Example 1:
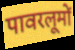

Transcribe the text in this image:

पावरलूमों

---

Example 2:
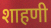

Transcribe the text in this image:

शाहणी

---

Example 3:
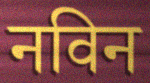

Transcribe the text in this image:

नविन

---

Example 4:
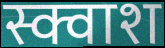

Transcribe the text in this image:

स्क्वाश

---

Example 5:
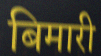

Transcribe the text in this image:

बिमारी